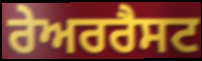
ਰੇਅਰਰੈਸਟ